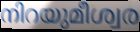
നിറയുമീശ്വര